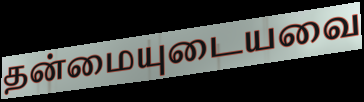
தன்மையுடையவை